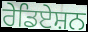
ਰੇਡਿਏਸ਼ਨ